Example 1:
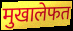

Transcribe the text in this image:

मुखालेफत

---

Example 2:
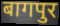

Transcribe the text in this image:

बागपुर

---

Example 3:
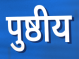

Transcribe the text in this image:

पुष्ठीय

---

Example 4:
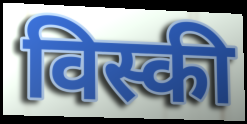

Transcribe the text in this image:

विस्की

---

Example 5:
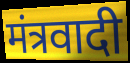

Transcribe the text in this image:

मंत्रवादी